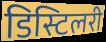
डिस्टिलरी